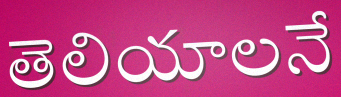
తెలియాలనే